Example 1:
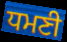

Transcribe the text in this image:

ਧਮਣੀ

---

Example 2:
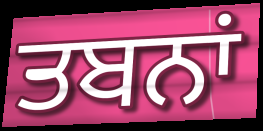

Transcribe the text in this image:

ਤਬਨਾਂ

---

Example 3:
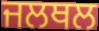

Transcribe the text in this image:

ਜਲਥਲ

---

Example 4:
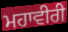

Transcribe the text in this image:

ਮਹਾਵੀਰੀ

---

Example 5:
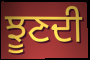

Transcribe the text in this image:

ਝੂਣਦੀ